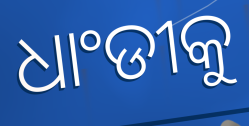
ଧାଂଡୀକୁ